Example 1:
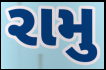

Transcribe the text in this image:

રામુ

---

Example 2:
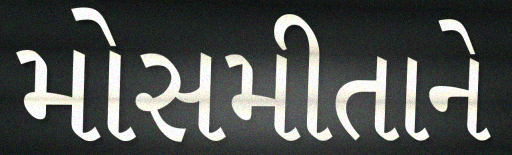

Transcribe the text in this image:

મોસમીતાને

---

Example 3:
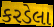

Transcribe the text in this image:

કરડેલા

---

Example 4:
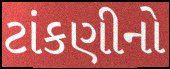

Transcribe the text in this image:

ટાંકણીનો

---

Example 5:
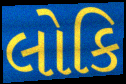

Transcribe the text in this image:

લોકિ